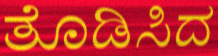
ತೊಡಿಸಿದ